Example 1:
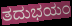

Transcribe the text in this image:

ತದುಭಯಂ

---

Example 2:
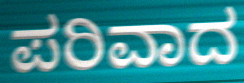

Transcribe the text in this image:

ಪರಿವಾದ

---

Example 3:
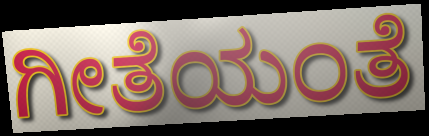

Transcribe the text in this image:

ಗೀತೆಯಂತೆ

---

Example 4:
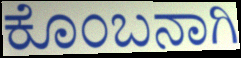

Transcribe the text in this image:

ಕೊಂಬನಾಗಿ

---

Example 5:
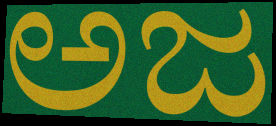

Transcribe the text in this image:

ಅಜ